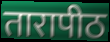
तारापीठ